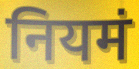
नियमं